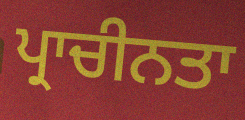
ਪ੍ਰਾਚੀਨਤਾ